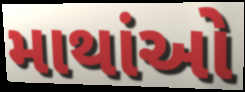
માથાંઓ